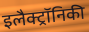
इलैक्ट्रॉनिकी